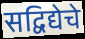
सद्विद्येचे